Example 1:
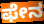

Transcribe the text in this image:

ಫೇನ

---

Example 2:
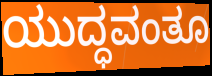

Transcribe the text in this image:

ಯುದ್ಧವಂತೂ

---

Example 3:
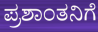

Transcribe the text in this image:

ಪ್ರಶಾಂತನಿಗೆ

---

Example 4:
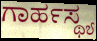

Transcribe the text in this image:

ಗಾರ್ಹಸ್ಥ್ಯ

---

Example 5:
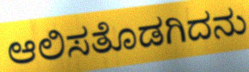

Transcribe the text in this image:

ಆಲಿಸತೊಡಗಿದನು